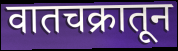
वातचक्रातून